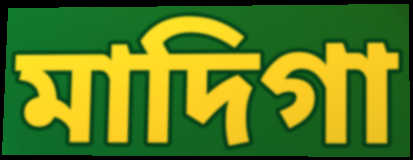
মাদিগা